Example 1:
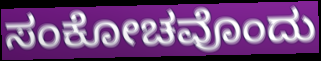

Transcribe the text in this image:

ಸಂಕೋಚವೊಂದು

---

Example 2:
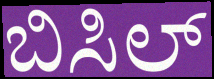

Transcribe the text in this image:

ಬಿಸಿಲ್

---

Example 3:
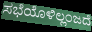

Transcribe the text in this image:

ಸಭೆಯೊಳಿಲ್ಲಂಜದೆ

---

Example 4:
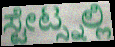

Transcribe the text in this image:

ಸ್ಟೇಟ್ಸ್ನಲ್ಲಿ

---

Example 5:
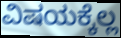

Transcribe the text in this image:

ವಿಷಯಕ್ಕೆಲ್ಲ